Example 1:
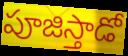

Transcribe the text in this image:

పూజిస్తాడో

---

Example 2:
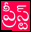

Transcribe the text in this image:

ప్రీస్ట్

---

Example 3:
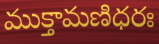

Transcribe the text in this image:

ముక్తామణిధరః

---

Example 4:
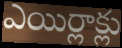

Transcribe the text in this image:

ఎయిర్లాక్లు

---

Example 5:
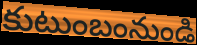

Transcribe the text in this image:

కుటుంబంనుండి